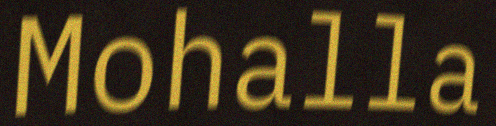
Mohalla